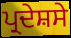
ਪ੍ਰਦੇਸ਼ਸੇ